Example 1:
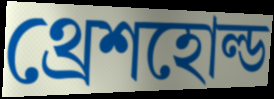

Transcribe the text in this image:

থ্রেশহোল্ড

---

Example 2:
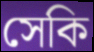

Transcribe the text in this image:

সেকি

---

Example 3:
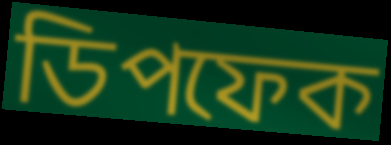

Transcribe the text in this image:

ডিপফেক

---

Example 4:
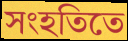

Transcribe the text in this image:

সংহতিতে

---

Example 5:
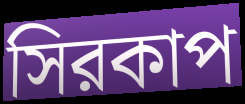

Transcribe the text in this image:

সিরকাপ